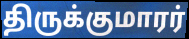
திருக்குமாரர்